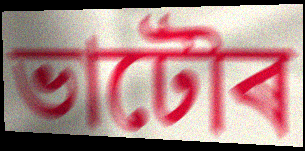
ভাটৌৰ